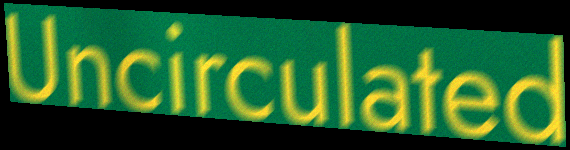
Uncirculated